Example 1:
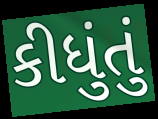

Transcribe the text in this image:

કીધુંતું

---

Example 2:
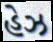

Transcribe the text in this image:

હેઝ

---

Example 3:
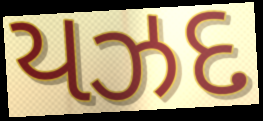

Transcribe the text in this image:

યઝદ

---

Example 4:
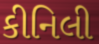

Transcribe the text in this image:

કીનિલી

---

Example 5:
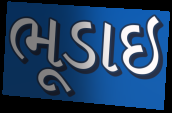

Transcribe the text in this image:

ભૂડાઇ